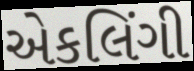
એકલિંગી